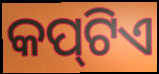
କପ୍‍ଟିଏ